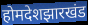
होमदेशझारखंड